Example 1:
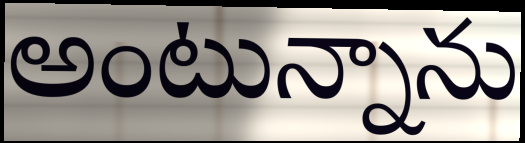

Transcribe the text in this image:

అంటున్నాను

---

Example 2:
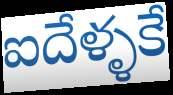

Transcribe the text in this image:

ఐదేళ్ళకే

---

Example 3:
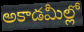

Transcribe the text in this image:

అకాడమీల్లో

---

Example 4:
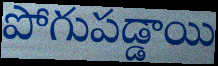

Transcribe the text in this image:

పోగుపడ్డాయి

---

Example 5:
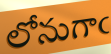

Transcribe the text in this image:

లోనుగాఁ